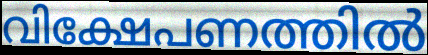
വിക്ഷേപണത്തിൽ